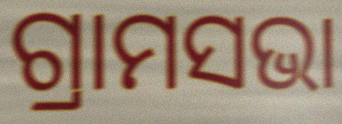
ଗ୍ରାମସଭା